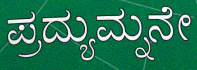
ಪ್ರದ್ಯುಮ್ನನೇ